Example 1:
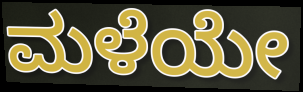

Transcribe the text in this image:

ಮಳೆಯೇ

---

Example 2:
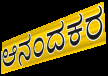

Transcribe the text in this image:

ಆನಂದಕರ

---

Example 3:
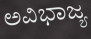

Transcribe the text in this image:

ಅವಿಭಾಜ್ಯ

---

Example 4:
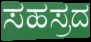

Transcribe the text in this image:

ಸಹಸ್ರದ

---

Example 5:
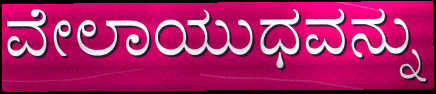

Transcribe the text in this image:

ವೇಲಾಯುಧವನ್ನು